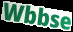
Wbbse